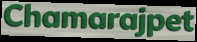
Chamarajpet